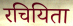
रचियिता